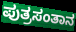
ಪುತ್ರಸಂತಾನ